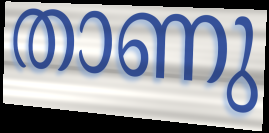
താണു